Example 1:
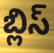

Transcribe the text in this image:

బ్లిస్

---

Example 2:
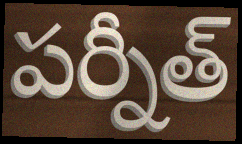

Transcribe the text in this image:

పర్నీత్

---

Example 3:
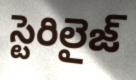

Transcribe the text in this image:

స్టెరిలైజ్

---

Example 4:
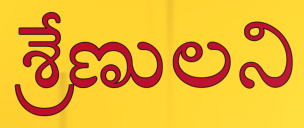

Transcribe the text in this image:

శ్రేణులని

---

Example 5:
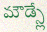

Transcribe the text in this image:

మౌడ్స్లే